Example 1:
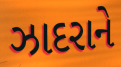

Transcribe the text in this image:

ઝાદરાને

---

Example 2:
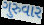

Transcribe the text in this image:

ગુરુવાર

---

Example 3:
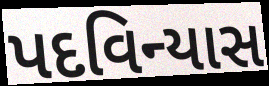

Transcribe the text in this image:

પદવિન્યાસ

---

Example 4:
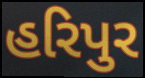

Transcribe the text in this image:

હરિપુર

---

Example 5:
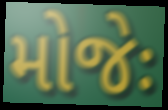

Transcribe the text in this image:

મોજેઃ